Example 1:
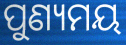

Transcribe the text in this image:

ପୁଣ୍ୟମୟ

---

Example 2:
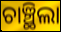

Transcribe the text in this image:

ଚାଞ୍ଛିଲା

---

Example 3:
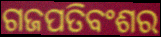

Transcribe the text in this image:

ଗଜପତିବଂଶର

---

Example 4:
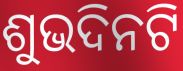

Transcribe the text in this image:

ଶୁଭଦିନଟି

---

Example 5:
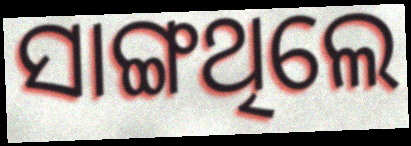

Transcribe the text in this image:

ସାଙ୍ଗଥିଲେ